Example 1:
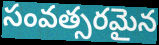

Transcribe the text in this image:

సంవత్సరమైన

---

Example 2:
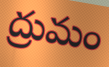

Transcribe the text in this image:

ద్రుమం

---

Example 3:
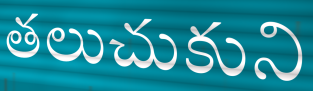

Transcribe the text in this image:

తలుచుకుని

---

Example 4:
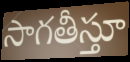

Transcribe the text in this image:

సాగతీస్తూ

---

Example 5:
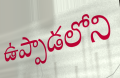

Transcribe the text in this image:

ఉప్పాడలోని